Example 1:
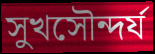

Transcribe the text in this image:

সুখসৌন্দর্য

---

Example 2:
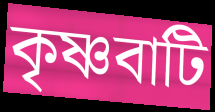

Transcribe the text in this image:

কৃষ্ণবাটি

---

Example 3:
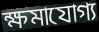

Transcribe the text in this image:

ক্ষমাযোগ্য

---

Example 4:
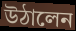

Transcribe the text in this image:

উঠালেন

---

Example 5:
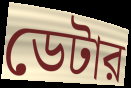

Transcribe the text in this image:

ডেটার